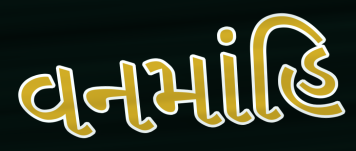
વનમાંહિ